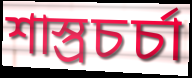
শাস্ত্রচর্চা